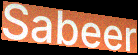
Sabeer